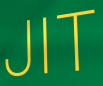
JIT